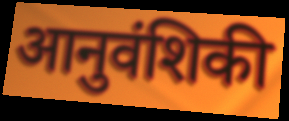
आनुवंशिकी